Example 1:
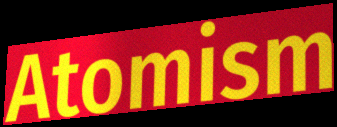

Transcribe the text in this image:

Atomism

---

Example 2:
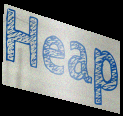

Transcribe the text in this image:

Heap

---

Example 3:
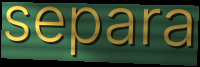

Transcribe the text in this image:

separa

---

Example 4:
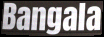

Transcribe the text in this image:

Bangala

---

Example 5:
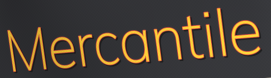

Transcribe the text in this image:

Mercantile